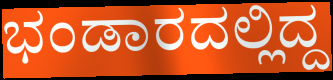
ಭಂಡಾರದಲ್ಲಿದ್ದ